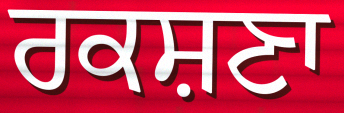
ਰਕਸ਼ਣਾ